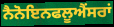
ਨੈਨੋਇਨਫਲੂਐਂਸਰਾਂ